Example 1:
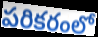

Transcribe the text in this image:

పరికరంలో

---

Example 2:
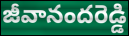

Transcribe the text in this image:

జీవానందరెడ్డి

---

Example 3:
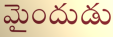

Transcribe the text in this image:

మైందుడు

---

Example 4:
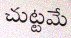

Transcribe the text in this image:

చుట్టమే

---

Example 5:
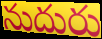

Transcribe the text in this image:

నుదురు